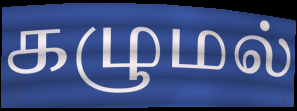
கழுமல்